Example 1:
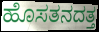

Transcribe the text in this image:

ಹೊಸತನದತ್ತ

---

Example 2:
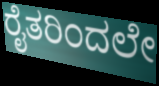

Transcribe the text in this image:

ರೈತರಿಂದಲೇ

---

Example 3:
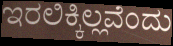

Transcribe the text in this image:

ಇರಲಿಕ್ಕಿಲ್ಲವೆಂದು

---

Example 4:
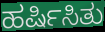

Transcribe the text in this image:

ಹರ್ಷಿಸಿತು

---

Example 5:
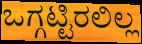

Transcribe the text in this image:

ಒಗ್ಗಟ್ಟಿರಲಿಲ್ಲ